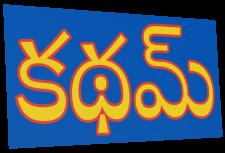
కథమ్